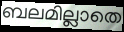
ബലമില്ലാതെ